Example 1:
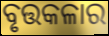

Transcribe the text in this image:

ବୃତ୍ତକଳାର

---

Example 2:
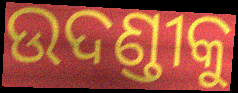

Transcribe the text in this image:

ଉଦଣ୍ଡୀକୁ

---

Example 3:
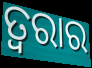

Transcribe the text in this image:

ତ୍ୱରାର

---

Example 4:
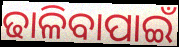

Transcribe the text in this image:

ଢାଳିବାପାଇଁ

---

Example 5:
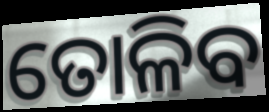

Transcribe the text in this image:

ତୋଳିବ